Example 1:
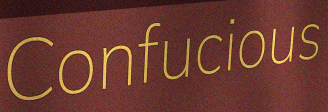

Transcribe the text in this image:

Confucious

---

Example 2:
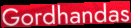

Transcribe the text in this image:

Gordhandas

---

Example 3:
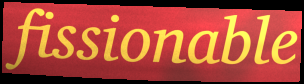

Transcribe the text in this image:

fissionable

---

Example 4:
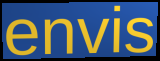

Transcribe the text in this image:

envis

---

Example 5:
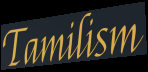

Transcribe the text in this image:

Tamilism